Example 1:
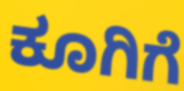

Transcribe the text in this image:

ಕೂಗಿಗೆ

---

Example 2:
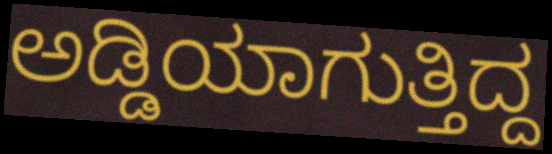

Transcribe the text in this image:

ಅಡ್ಡಿಯಾಗುತ್ತಿದ್ದ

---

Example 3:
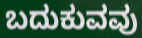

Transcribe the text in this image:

ಬದುಕುವವು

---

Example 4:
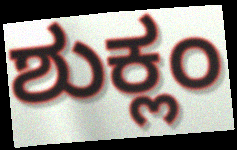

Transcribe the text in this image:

ಶುಕ್ಲಂ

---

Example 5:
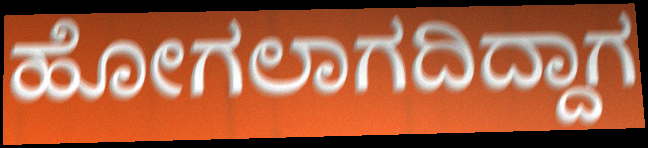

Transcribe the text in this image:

ಹೋಗಲಾಗದಿದ್ದಾಗ